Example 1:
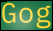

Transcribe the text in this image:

Gog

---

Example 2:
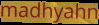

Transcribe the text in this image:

madhyahn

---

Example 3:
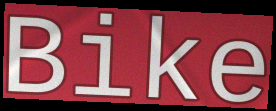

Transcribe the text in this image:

Bike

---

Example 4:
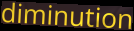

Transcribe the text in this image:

diminution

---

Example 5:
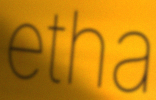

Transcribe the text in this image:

etha